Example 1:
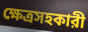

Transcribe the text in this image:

ক্ষেত্রসহকারী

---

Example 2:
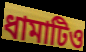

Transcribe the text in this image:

ধামাটিও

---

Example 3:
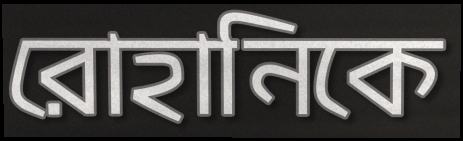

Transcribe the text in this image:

রোহানিকে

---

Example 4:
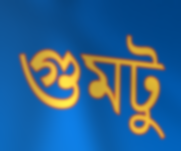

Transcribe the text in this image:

গুমটু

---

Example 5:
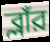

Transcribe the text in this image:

ব্লাঁর